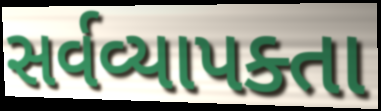
સર્વવ્યાપક્તા